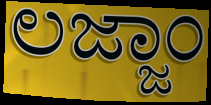
ಲಜ್ಜಾಂ